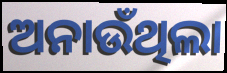
ଅନାଉଁଥିଲା